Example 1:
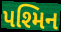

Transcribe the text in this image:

પશ્મિન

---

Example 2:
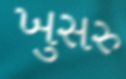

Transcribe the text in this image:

ખુસરુ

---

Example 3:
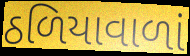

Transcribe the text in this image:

ઠળિયાવાળાં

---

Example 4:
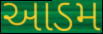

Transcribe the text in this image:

આડમ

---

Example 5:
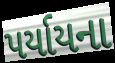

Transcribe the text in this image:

પર્યાયના